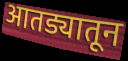
आतड्यातून